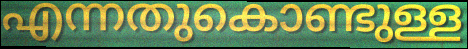
എന്നതുകൊണ്ടുള്ള